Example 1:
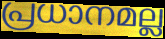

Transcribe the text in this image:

പ്രധാനമല്ല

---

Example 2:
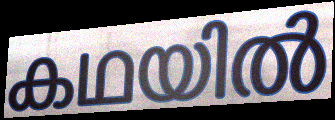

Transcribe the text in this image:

കഥയിൽ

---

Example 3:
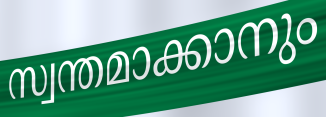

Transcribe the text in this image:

സ്വന്തമാക്കാനും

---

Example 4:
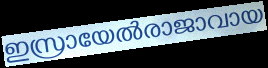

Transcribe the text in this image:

ഇസ്രായേൽരാജാവായ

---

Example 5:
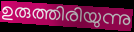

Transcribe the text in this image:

ഉരുത്തിരിയുന്നു